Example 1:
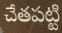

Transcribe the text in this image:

చేతపట్టి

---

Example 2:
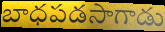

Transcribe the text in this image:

బాధపడసాగాడు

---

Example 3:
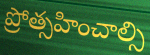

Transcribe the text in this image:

ప్రోత్సహించాల్సి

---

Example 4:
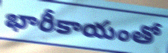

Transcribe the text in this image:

భారీకాయంతో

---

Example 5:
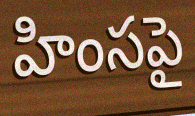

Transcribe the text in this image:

హింసపై